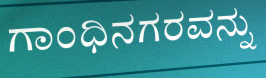
ಗಾಂಧಿನಗರವನ್ನು